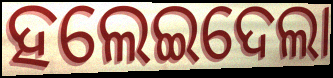
ହଲେଇଦେଲା